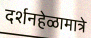
दर्शनहेळामात्रे